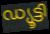
ഡ്യൂട്ടി